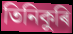
তিনিকুৰি